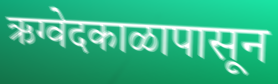
ऋग्वेदकाळापासून